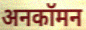
अनकॉमन